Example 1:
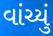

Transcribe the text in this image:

વાંચ્યું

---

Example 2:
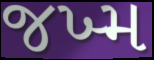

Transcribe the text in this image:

જખ્મ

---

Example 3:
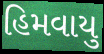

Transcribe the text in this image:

હિમવાયુ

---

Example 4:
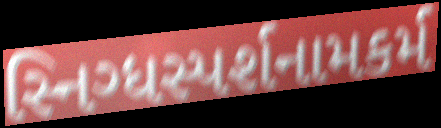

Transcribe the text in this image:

સ્નિગ્ધસ્પર્શનામકર્મ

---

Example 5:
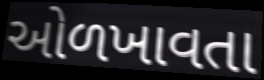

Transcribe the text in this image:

ઓળખાવતા